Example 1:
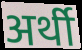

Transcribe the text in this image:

अर्थी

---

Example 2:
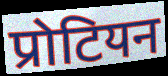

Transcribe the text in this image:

प्रोटियन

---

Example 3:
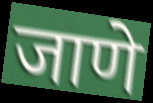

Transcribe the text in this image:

जाणे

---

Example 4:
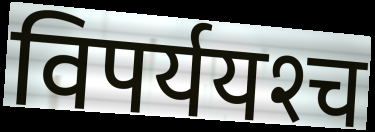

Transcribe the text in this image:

विपर्ययश्च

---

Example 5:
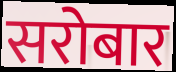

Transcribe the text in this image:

सरोबार